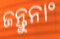
ଜନ୍ତୁନାଂ